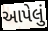
આપેલું